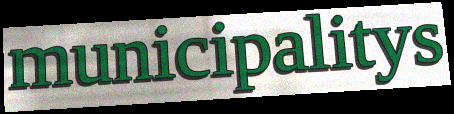
municipalitys